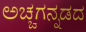
ಅಚ್ಚಗನ್ನಡದ